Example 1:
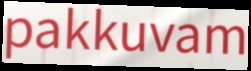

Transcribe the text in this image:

pakkuvam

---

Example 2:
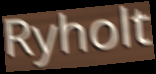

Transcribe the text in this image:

Ryholt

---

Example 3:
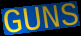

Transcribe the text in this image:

GUNS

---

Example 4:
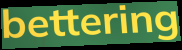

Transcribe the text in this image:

bettering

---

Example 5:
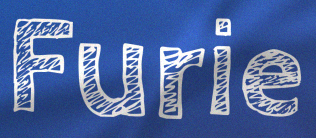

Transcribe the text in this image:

Furie